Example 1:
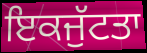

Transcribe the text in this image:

ਇਕਜੁੱਟਤਾ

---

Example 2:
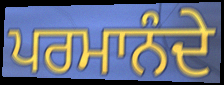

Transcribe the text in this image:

ਪਰਮਾਨੰਦੇ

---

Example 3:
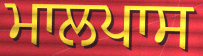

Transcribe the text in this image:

ਮਾਲਪਾਸ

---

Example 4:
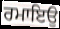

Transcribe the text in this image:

ਰਮਾਇਉ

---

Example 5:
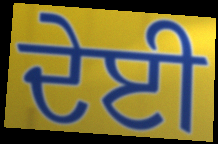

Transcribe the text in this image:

ਦੇਈ